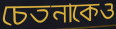
চেতনাকেও